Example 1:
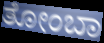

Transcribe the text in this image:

ತೋಂಬಾ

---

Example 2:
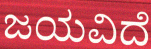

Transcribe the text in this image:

ಜಯವಿದೆ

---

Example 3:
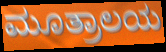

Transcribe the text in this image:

ಮೂತ್ರಾಲಯ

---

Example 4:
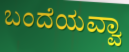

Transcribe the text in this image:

ಬಂದೆಯವ್ವಾ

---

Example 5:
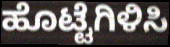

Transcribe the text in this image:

ಹೊಟ್ಟೆಗಿಳಿಸಿ